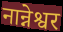
नान्नेश्वर